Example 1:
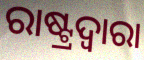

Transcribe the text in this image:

ରାଷ୍ଟ୍ରଦ୍ଵାରା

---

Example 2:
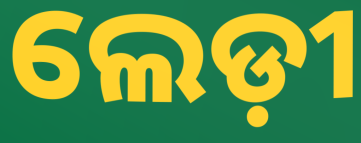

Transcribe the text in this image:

ଲେଡ଼ୀ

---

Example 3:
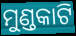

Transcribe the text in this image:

ମୁଣ୍ଡକାଟି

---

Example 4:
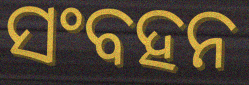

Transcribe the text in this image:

ସଂବହନ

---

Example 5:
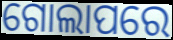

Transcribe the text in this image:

ଗୋଲାପରେ